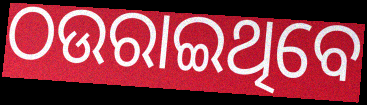
ଠଉରାଇଥିବେ